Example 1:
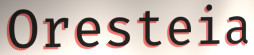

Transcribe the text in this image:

Oresteia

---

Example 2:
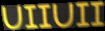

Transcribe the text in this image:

UIIUII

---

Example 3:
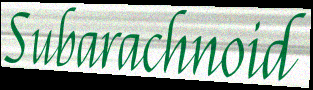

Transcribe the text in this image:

Subarachnoid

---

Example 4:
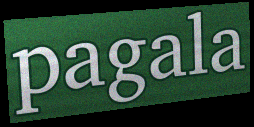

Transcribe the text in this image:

pagala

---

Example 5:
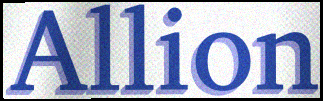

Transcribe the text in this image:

Allion